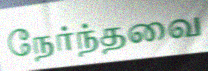
நேர்ந்தவை